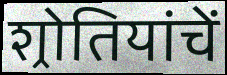
श्रोतियांचें